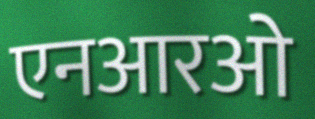
एनआरओ